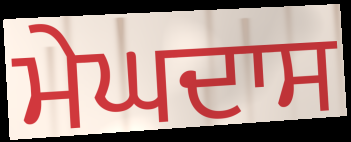
ਮੇਘਦਾਸ